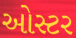
ઓસ્ટર